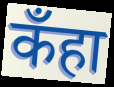
कँहा